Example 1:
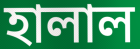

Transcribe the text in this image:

হালাল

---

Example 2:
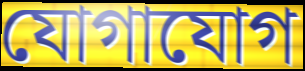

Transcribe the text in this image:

যোগাযোগ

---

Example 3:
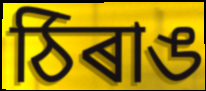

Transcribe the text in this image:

ঠিৰাঙ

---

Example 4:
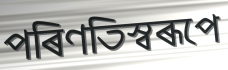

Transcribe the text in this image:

পৰিণতিস্বৰূপে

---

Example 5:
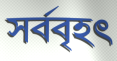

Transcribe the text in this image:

সৰ্ববৃহৎ